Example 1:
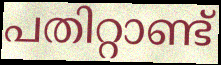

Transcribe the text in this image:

പതിറ്റാണ്ട്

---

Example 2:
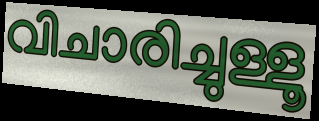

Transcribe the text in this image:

വിചാരിച്ചുള്ളൂ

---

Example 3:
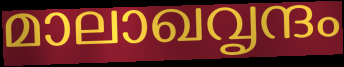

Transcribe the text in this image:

മാലാഖവൃന്ദം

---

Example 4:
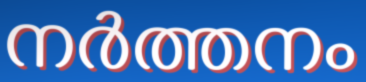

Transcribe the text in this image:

നർത്തനം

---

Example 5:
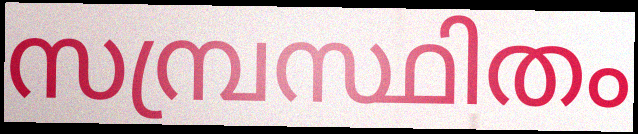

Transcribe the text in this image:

സമ്പ്രസ്ഥിതം